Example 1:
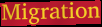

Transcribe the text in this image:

Migration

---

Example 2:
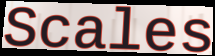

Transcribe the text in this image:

Scales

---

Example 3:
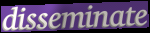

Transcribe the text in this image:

disseminate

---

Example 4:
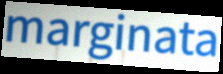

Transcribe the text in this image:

marginata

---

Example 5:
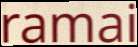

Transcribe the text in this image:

ramai